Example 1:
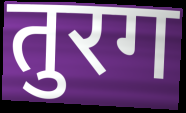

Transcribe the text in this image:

तुरग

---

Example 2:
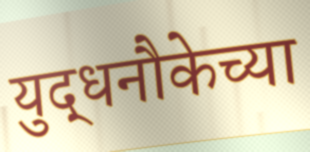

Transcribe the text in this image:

युद्धनौकेच्या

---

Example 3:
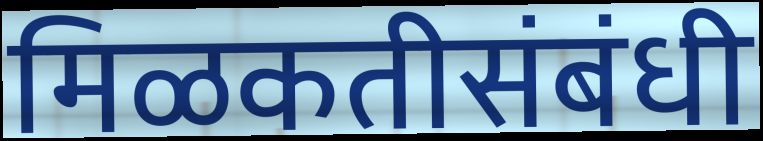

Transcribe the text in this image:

मिळकतीसंबंधी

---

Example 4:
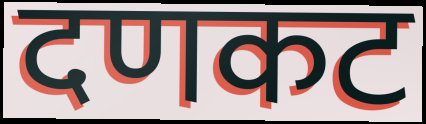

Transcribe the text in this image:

दणकट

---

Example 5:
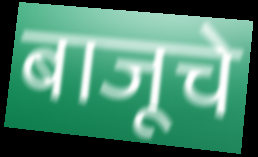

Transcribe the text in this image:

बाजूचे